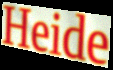
Heide